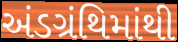
અંડગ્રંથિમાંથી